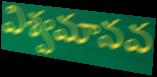
విశ్వమానవ